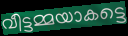
വീട്ടമ്മയാകട്ടെ